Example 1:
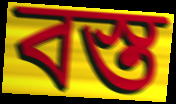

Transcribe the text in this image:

বস্ত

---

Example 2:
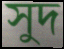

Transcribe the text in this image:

সুদ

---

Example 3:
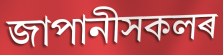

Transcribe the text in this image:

জাপানীসকলৰ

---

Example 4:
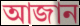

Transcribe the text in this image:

আজান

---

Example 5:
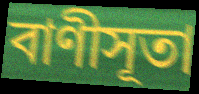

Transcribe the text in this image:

বাণীসূতা